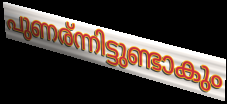
പുണര്ന്നിട്ടുണ്ടാകും